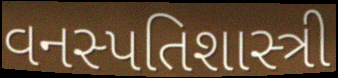
વનસ્પતિશાસ્ત્રી